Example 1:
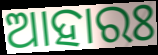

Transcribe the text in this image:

ଆହାରଃ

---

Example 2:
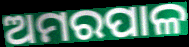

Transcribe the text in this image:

ଅମରପାଳ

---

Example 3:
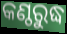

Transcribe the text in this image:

କଣ୍ଠରୁଦ୍ଧ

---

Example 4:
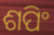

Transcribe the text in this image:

ଶପିଂ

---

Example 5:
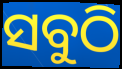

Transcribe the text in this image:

ସବୁଠି